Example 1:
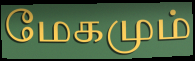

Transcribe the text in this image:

மேகமும்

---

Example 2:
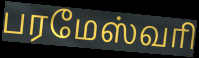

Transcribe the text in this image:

பரமேஸ்வரி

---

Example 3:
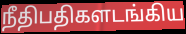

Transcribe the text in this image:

நீதிபதிகளடங்கிய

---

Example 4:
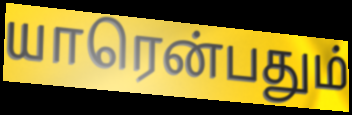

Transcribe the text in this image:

யாரென்பதும்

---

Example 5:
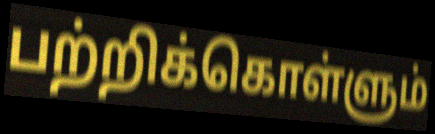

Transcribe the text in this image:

பற்றிக்கொள்ளும்